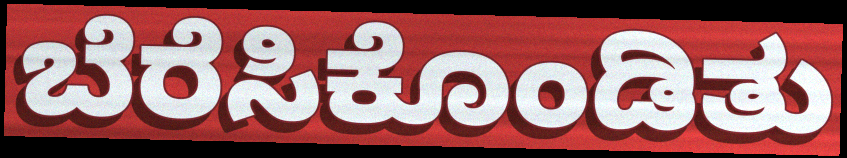
ಬೆರೆಸಿಕೊಂಡಿತು